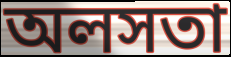
অলসতা